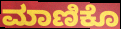
ಮಾಣಿಕೊ